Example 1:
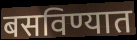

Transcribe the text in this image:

बसविण्यात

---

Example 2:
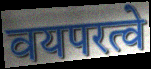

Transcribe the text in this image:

वयपरत्वे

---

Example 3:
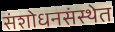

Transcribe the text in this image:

संशोधनसंस्थेत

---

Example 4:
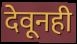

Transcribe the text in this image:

देवूनही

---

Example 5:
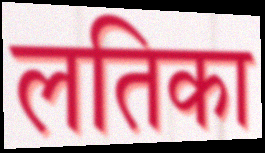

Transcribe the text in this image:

लतिका